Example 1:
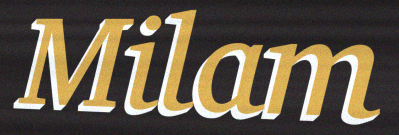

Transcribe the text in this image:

Milam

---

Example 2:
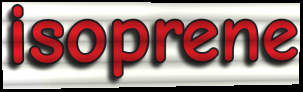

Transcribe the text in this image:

isoprene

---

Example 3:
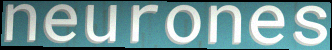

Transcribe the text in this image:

neurones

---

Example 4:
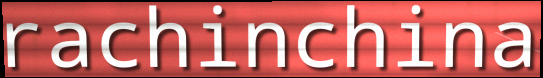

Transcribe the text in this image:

rachinchina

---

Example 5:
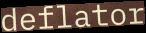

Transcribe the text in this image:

deflator